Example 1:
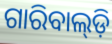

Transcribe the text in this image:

ଗାରିବାଲ୍‌ଡ଼ି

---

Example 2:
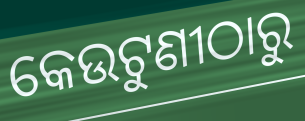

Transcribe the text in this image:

କେଉଟୁଣୀଠାରୁ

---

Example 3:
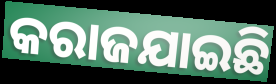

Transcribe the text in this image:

କରାଜଯାଇଛି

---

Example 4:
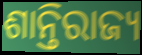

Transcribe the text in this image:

ଶାନ୍ତିରାଜ୍ୟ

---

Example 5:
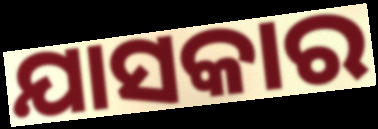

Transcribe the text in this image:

ଯାସକାର